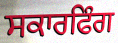
ਸਕਾਰਫਿੰਗ